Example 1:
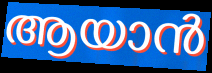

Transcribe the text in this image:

ആയാൻ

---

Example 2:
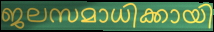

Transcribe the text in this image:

ജലസമാധിക്കായി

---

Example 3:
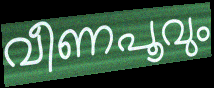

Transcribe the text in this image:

വീണപൂവും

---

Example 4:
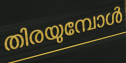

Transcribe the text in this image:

തിരയുമ്പോൾ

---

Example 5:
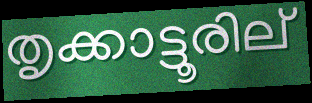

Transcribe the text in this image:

തൃക്കാട്ടൂരില്